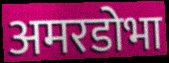
अमरडोभा